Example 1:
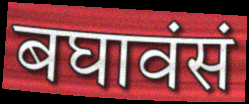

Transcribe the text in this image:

बघावंसं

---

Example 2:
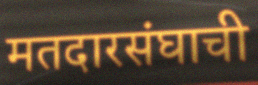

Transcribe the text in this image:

मतदारसंघाची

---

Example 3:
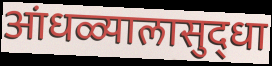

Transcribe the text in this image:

आंधळ्यालासुद्धा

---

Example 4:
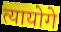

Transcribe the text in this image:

त्यायोगे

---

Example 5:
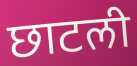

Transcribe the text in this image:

छाटली